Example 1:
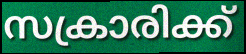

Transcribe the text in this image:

സക്രാരിക്ക്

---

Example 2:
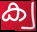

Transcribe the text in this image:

ക്വ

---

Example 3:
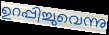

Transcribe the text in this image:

ഉറപ്പിച്ചുവെന്നു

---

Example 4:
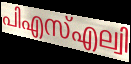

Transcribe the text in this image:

പിഎസ്എല്വി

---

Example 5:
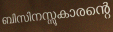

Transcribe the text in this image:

ബിസിനസ്സുകാരന്റെ